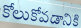
కోలుకోవడానికి